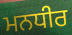
ਮਨਧੀਰ